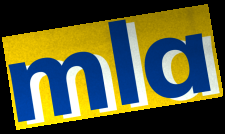
mla